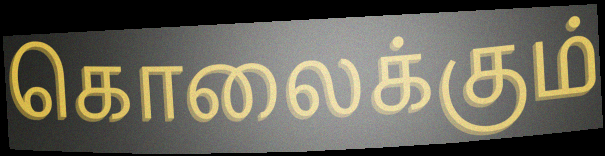
கொலைக்கும்